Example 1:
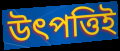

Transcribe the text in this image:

উৎপত্তিই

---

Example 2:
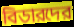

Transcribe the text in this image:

বিডারদের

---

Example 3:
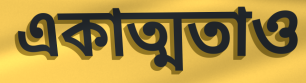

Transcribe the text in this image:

একাত্মতাও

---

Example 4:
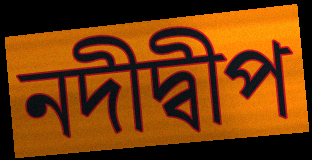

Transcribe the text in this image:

নদীদ্বীপ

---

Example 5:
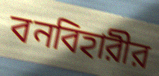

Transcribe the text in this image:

বনবিহারীর